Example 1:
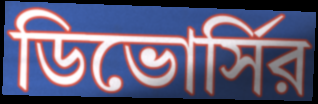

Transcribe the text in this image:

ডিভোর্সির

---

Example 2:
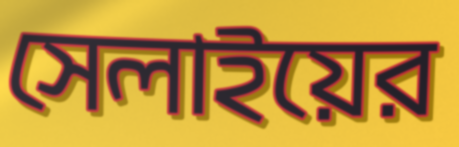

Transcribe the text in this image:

সেলাইয়ের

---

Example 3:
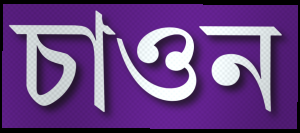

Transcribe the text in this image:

চাওন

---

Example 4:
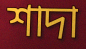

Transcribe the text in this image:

শাদা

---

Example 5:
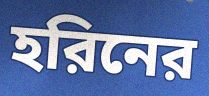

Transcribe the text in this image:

হরিনের